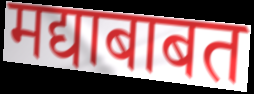
मद्याबाबत